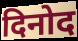
दिनोद